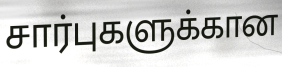
சார்புகளுக்கான